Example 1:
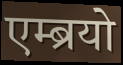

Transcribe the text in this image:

एम्ब्रयो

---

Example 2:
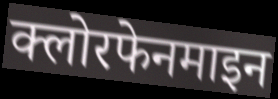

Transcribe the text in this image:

क्लोरफेनमाइन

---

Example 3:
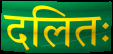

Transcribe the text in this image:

दलितः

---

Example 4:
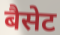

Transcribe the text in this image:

बैसेट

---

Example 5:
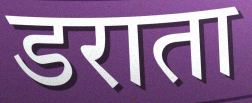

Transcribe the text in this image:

डराता